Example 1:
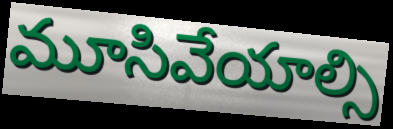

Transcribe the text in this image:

మూసివేయాల్సి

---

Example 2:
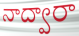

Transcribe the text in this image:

నాద్వారా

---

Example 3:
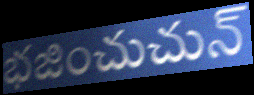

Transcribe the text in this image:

భజించుచున్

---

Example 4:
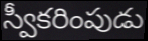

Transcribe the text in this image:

స్వీకరింపుడు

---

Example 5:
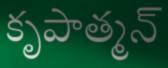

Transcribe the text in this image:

కృపాత్మన్